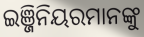
ଇଞ୍ଜିନିୟରମାନଙ୍କୁ